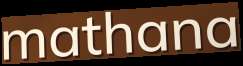
mathana